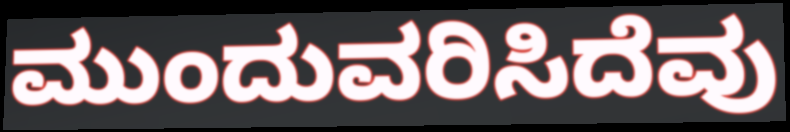
ಮುಂದುವರಿಸಿದೆವು